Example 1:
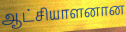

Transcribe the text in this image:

ஆட்சியாளனான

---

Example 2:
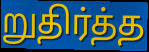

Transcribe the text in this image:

றுதிர்த்த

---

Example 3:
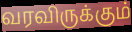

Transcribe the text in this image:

வரவிருக்கும்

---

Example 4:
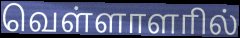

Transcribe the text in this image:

வெள்ளாளரில்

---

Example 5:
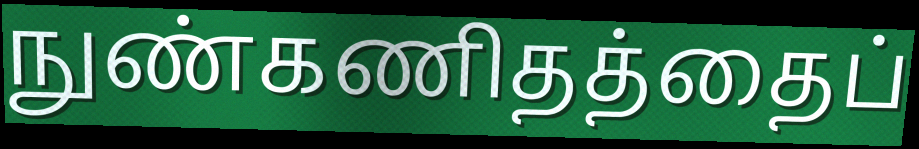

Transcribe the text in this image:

நுண்கணிதத்தைப்